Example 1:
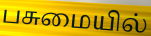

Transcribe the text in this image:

பசுமையில்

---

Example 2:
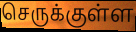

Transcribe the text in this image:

செருக்குள்ள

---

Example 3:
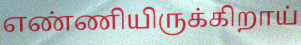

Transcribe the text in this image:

எண்ணியிருக்கிறாய்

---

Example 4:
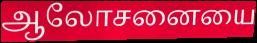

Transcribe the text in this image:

ஆலோசனையை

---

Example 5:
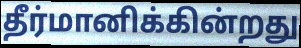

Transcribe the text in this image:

தீர்மானிக்கின்றது